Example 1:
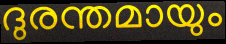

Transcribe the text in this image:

ദുരന്തമായും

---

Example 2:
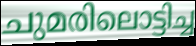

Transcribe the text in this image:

ചുമരിലൊട്ടിച്ച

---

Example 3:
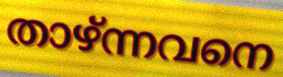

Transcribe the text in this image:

താഴ്ന്നവനെ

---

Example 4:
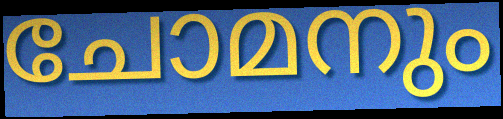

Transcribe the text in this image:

ചോമനും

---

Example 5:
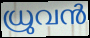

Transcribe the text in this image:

ധ്രുവൻ